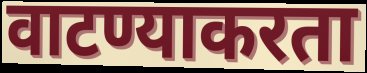
वाटण्याकरता